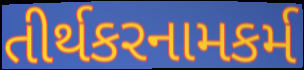
તીર્થકરનામકર્મ